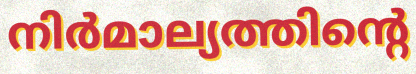
നിർമാല്യത്തിന്റെ